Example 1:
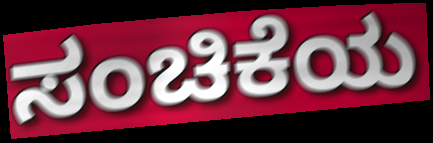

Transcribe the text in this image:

ಸಂಚಿಕೆಯ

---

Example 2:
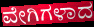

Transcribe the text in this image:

ವೇಗಿಗಳಾದ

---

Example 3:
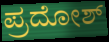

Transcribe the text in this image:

ಪ್ರದೋಶ್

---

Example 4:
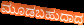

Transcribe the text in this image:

ಮೂಡಬಹುದಾದ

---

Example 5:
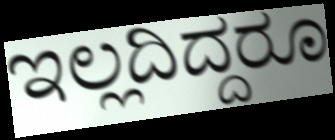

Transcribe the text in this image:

ಇಲ್ಲದಿದ್ದರೂ